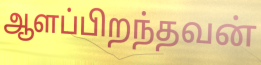
ஆளப்பிறந்தவன்